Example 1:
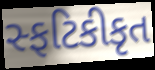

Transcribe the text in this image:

સ્ફટિકીકૃત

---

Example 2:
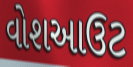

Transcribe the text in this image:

વોશઆઉટ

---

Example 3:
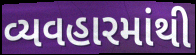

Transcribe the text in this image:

વ્યવહારમાંથી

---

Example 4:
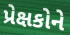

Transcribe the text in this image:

પ્રેક્ષકોને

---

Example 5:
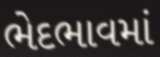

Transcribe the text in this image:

ભેદભાવમાં